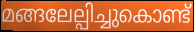
മങ്ങലേല്പിച്ചുകൊണ്ട്